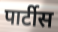
पार्टीस